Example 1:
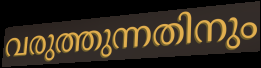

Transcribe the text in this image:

വരുത്തുന്നതിനും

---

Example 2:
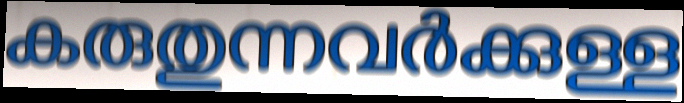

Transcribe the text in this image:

കരുതുന്നവർക്കുള്ള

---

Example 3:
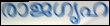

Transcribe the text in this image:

രാജഗൃഹ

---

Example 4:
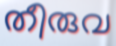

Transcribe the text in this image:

തീരുവ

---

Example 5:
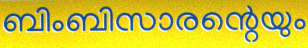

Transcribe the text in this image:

ബിംബിസാരന്റെയും